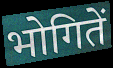
भोगितें